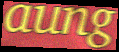
aung